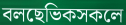
বলছেভিকসকলে